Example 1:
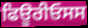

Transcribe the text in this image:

ਫਿਊਰੀਓਸਸ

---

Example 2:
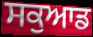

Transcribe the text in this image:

ਸਕੁਆਡ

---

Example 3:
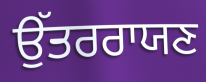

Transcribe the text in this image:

ਉੱਤਰਰਾਯਣ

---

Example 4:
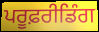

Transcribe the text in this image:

ਪਰੂਫ਼ਰੀਡਿੰਗ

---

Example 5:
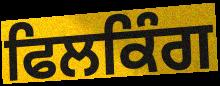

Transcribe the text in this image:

ਫਿਲਕਿੰਗ